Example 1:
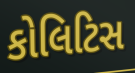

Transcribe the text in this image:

કોલિટિસ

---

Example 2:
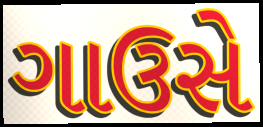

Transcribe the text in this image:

ગાઉસે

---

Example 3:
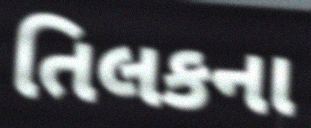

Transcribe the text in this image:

તિલકના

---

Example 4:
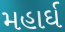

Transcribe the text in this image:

મહાર્ઘ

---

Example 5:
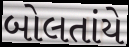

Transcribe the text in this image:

બોલતાંયે